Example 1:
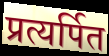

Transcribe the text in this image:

प्रत्यर्पित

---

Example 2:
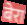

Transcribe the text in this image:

बेरा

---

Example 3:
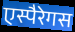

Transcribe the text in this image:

एस्पैरेगस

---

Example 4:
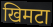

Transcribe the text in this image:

खिमटा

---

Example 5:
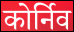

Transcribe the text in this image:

कोर्निव